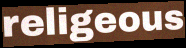
religeous